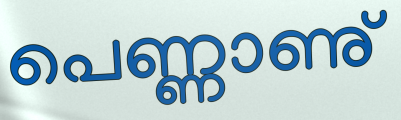
പെണ്ണാണു്